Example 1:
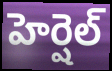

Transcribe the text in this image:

హెర్షెల్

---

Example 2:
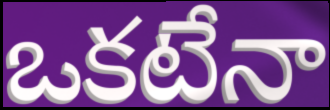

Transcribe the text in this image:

ఒకటేనా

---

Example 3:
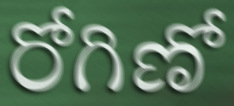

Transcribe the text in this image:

రోగిణో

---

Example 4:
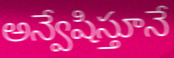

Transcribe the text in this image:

అన్వేషిస్తూనే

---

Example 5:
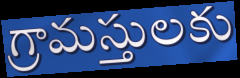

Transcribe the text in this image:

గ్రామస్తులకు